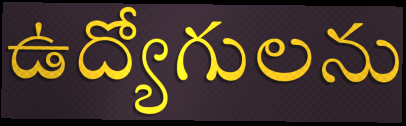
ఉద్యోగులను